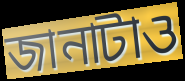
জানাটাও